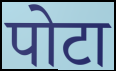
पोटा